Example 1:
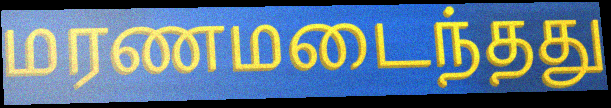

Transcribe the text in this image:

மரணமடைந்தது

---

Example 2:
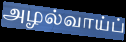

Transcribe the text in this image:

அழல்வாய்ப்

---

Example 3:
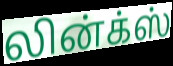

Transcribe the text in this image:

லின்க்ஸ்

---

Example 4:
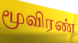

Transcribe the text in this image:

மூவிரண்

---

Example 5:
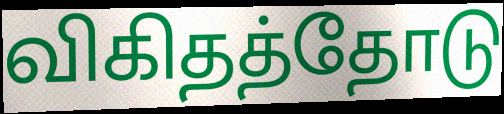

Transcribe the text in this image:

விகிதத்தோடு